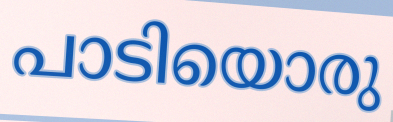
പാടിയൊരു